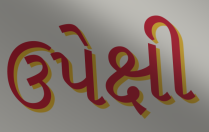
ઉપેક્ષી